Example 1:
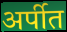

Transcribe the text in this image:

अर्पीत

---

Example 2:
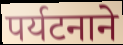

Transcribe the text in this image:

पर्यटनाने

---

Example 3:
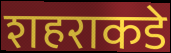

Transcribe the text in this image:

शहराकडे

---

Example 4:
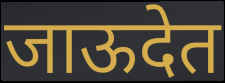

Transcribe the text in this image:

जाऊदेत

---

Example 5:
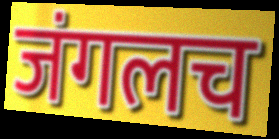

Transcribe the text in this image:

जंगलच